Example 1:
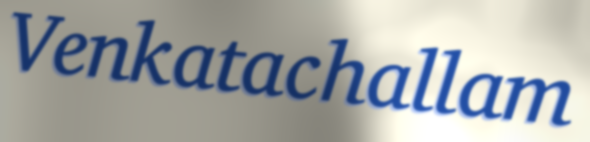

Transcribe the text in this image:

Venkatachallam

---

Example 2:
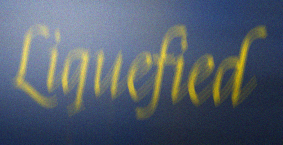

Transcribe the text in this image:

Liquefied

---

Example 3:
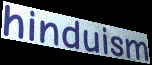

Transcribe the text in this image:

hinduism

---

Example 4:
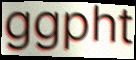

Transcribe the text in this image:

ggpht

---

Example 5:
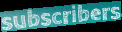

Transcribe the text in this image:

subscribers